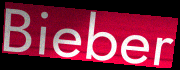
Bieber